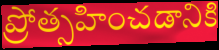
ప్రోత్సహించడానికి